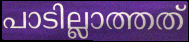
പാടില്ലാത്തത്